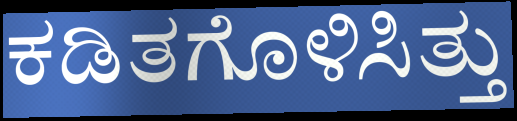
ಕಡಿತಗೊಳಿಸಿತ್ತು